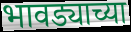
भावड्याच्या